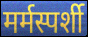
मर्मस्पर्शी